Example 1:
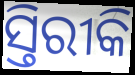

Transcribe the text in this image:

ସ୍ତିରୀକି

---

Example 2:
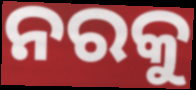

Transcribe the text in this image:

ନରକୁ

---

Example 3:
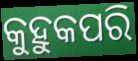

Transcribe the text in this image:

କୁହୁକପରି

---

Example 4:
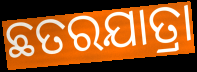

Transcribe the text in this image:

ଛତରଯାତ୍ରା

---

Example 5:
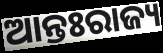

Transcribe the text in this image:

ଆନ୍ତଃରାଜ୍ୟ